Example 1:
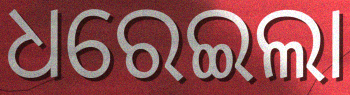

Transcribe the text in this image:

ଧରେଇଲା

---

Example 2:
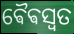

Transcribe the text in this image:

ଵୈଵସ୍ୱତ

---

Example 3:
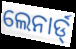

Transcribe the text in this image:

ଲେନାର୍ଡ୍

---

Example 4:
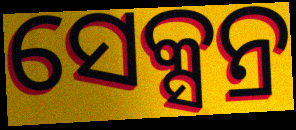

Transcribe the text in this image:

ସେକ୍ସନ୍ର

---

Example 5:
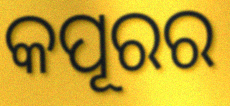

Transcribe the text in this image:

କପୂରର